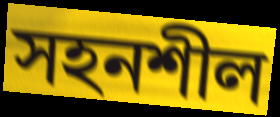
সহনশীল